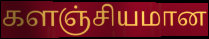
களஞ்சியமான